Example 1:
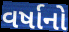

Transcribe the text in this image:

વર્ષાનો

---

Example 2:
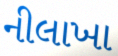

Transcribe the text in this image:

નીલાખા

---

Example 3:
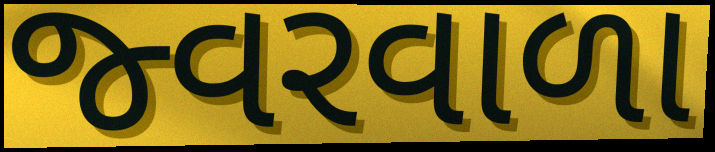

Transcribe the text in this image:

જ્વરવાળા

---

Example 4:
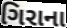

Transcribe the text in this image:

ગિરાના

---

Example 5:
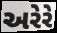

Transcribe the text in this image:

અરેરે